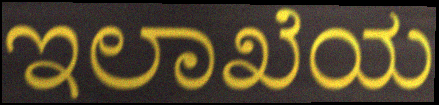
ಇಲಾಖೆಯ